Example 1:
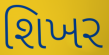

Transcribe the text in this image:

શિખર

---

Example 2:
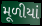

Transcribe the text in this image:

મૂળીયાં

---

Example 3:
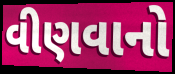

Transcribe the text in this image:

વીણવાનો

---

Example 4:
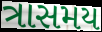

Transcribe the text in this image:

ત્રાસમય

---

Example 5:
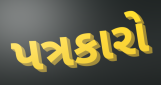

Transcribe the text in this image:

પત્રકારો